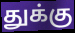
துக்கு